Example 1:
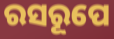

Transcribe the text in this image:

ରସରୂପେ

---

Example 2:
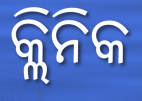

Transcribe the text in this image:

କ୍ଲିନିକ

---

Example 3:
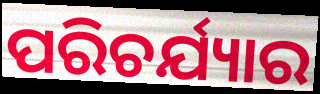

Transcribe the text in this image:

ପରିଚର୍ଯ୍ୟାର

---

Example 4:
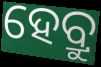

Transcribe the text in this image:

ହେବ୍ରୁ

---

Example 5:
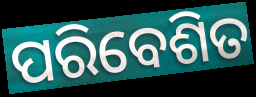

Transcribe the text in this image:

ପରିବେଶିତ